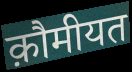
क़ौमीयत